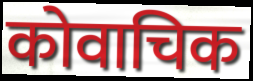
कोवाचिक